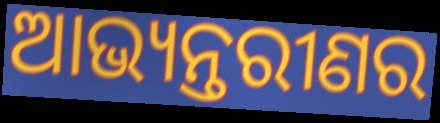
ଆଭ୍ୟନ୍ତରୀଣର